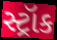
સ્ટ્રૉક